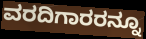
ವರದಿಗಾರರನ್ನೂ